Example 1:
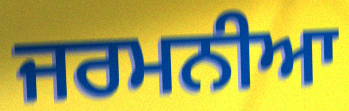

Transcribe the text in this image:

ਜਰਮਨੀਆ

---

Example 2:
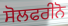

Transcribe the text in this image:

ਸੋਲਫਰੀਨੋ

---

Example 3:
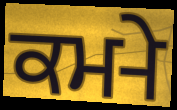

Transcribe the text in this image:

ਕਮ੍ਮੇ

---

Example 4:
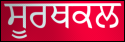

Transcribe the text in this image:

ਸੂਰਥਕਲ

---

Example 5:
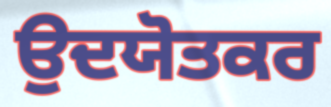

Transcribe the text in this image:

ਉਦਯੋਤਕਰ